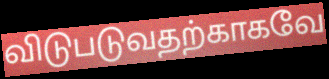
விடுபடுவதற்காகவே